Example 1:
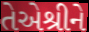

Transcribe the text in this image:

તેએશ્રીને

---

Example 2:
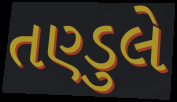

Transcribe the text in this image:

તણ્ડુલે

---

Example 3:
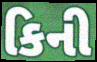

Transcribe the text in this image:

કિની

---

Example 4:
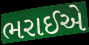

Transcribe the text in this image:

ભરાઈએ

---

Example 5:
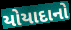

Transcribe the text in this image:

યોયાદાનો